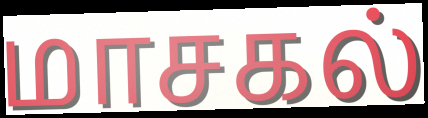
மாசகல்